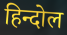
हिन्दोल